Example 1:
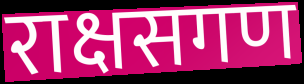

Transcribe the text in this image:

राक्षसगण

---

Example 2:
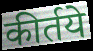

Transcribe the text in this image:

कीर्तये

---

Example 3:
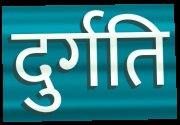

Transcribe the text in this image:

दुर्गति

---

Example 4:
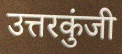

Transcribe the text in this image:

उत्तरकुंजी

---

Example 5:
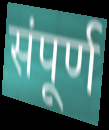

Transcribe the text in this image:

संपूर्ण